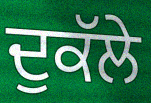
ਦੁਕੱਲੇ